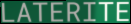
LATERITE